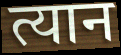
त्यान